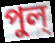
পুল্